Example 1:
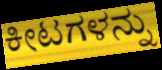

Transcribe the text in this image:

ಕೀಟಗಳನ್ನು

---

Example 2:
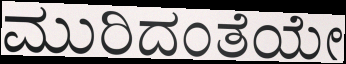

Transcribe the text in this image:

ಮುರಿದಂತೆಯೇ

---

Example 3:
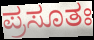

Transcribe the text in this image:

ಪ್ರಸೂತಃ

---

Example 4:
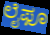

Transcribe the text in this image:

ಲೈಫೂ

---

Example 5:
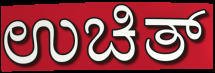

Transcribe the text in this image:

ಉಚಿತ್